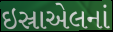
ઇસ્રાએલનાં